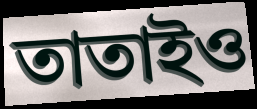
তাতাইও